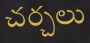
చర్చలు